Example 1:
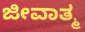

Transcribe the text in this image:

ಜೀವಾತ್ಮ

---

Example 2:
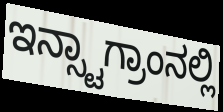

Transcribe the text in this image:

ಇನ್ಸ್ಟಾಗ್ರಾಂನಲ್ಲಿ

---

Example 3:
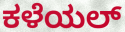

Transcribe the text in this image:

ಕಳೆಯಲ್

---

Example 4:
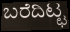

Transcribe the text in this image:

ಬರೆದಿಟ್ಟ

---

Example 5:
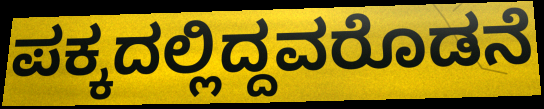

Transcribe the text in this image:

ಪಕ್ಕದಲ್ಲಿದ್ದವರೊಡನೆ